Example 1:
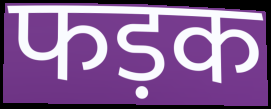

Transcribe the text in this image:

फड़क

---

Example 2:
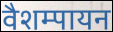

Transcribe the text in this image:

वैशम्पायन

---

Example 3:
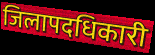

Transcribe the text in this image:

जिलापदधिकारी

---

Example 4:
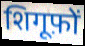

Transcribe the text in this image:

शिगूफ़ों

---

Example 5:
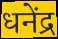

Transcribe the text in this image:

धनेंद्र